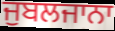
ਜੁਬਲਜਾਨਾ